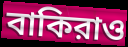
বাকিরাও